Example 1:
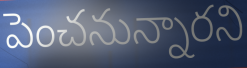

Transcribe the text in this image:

పెంచనున్నారని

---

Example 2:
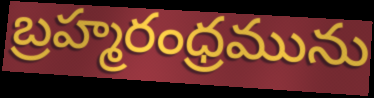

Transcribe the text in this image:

బ్రహ్మరంధ్రమును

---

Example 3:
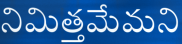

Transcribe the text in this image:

నిమిత్తమేమని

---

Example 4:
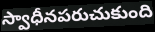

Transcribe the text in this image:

స్వాధీనపరుచుకుంది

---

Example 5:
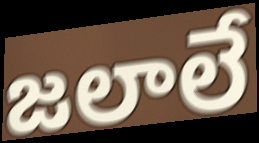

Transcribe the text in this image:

జలాలే